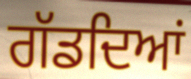
ਗੱਡਦਿਆਂ